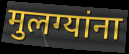
मुलग्यांना